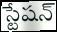
స్టేషన్